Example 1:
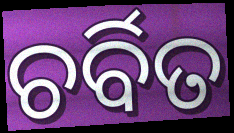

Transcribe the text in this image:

ଚର୍ବିତ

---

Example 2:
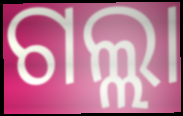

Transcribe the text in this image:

ଗଲ୍ଲା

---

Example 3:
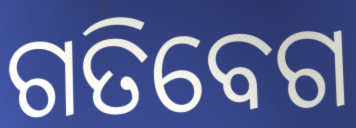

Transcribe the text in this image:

ଗତିବେଗ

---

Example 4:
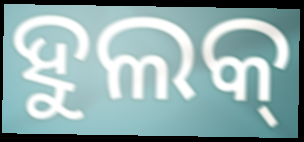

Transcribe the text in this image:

ହୁଲକ୍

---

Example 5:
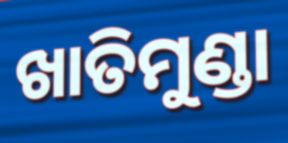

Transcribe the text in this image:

ଖାତିମୁଣ୍ଡା